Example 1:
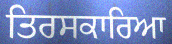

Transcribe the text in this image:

ਤਿਰਸਕਾਰਿਆ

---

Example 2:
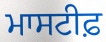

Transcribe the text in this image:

ਮਾਸਟੀਫ਼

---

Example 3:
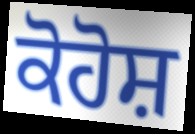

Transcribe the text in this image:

ਕੋਹੋਸ਼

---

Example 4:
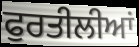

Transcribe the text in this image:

ਫੁਰਤੀਲੀਆਂ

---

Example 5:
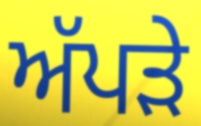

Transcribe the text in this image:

ਅੱਪੜੇ